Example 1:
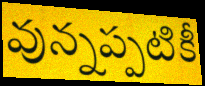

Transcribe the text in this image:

వున్నప్పటికీ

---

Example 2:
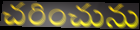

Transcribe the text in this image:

చరించును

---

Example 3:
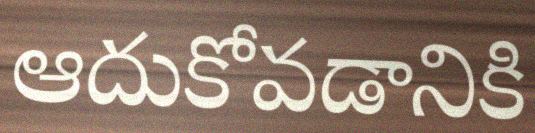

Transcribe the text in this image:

ఆదుకోవడానికి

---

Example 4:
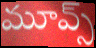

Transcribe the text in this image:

మూవ్స్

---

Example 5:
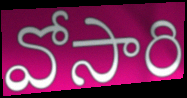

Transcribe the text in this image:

వోసారి